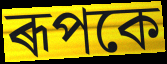
ৰূপকে